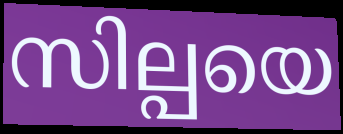
സില്പയെ